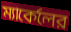
ম্যার্কেলের